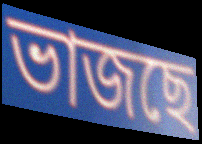
ভাজছে